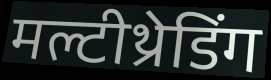
मल्टीथ्रेडिंग